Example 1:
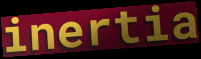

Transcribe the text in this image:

inertia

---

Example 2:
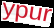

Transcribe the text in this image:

ypur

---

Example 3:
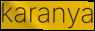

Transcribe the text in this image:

karanya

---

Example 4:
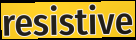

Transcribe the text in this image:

resistive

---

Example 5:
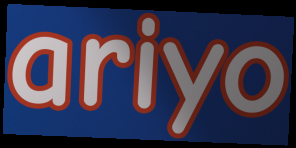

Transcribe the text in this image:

ariyo